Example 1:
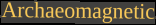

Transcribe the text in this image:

Archaeomagnetic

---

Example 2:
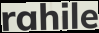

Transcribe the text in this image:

rahile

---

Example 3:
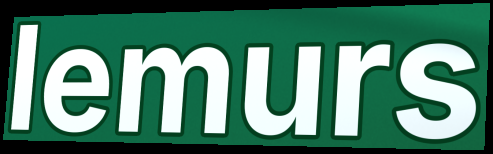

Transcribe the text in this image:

lemurs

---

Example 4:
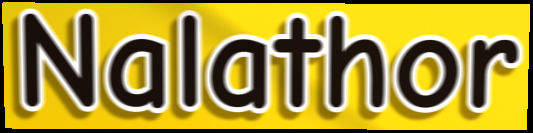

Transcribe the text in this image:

Nalathor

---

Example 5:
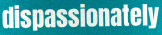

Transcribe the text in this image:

dispassionately